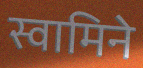
स्वामिने